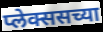
प्लेक्ससच्या